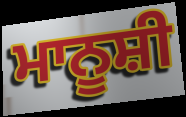
ਮਾਨੂਸ਼ੀ